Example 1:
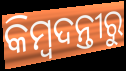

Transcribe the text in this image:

କିମ୍ବଦନ୍ତୀରୁ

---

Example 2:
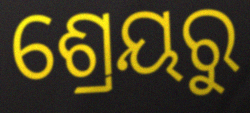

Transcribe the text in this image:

ଶ୍ରେୟରୁ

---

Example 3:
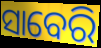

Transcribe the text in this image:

ସାବେରି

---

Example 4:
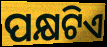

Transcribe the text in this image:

ପକ୍ଷଟିଏ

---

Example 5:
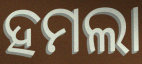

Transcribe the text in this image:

ହମଲା